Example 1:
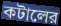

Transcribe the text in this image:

কটালের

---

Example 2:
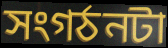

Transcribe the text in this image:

সংগঠনটা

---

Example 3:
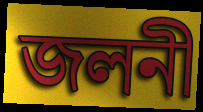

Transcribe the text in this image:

জলনী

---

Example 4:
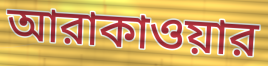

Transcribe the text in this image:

আরাকাওয়ার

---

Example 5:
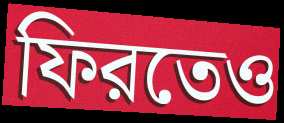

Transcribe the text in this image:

ফিরতেও